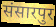
संसारपुर